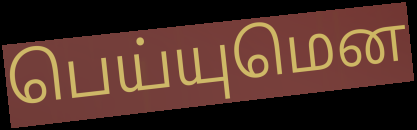
பெய்யுமென